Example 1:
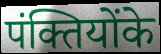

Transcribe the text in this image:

पंक्तियोंके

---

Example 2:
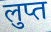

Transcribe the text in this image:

लुप्त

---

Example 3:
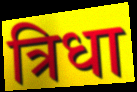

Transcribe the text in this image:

त्रिधा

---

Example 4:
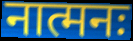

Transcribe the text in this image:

नात्मनः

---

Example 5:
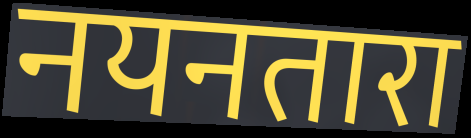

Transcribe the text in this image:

नयनतारा